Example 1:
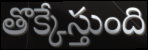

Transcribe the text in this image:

తొక్కేస్తుంది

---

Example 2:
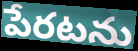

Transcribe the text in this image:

పేరటను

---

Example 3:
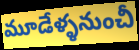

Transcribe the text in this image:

మూడేళ్ళనుంచీ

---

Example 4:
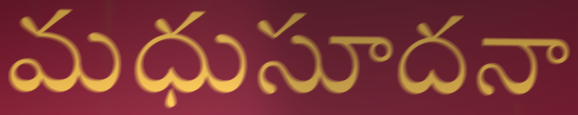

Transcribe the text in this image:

మధుసూదనా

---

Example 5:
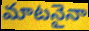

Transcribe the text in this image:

మాటనైనా